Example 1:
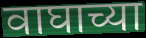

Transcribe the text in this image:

वाघाच्या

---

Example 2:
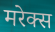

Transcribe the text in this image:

मरेक्स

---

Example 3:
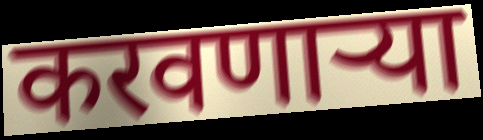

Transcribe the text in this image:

करवणाऱ्या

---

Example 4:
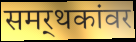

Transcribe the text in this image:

समर्थकांवर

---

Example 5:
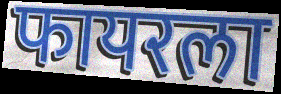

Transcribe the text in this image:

फायरला